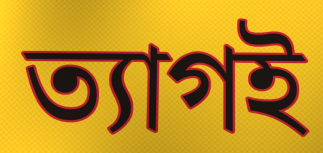
ত্যাগই